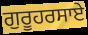
ਗੁਰੂਹਰਸਾਏ